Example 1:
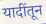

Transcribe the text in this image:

यादींतून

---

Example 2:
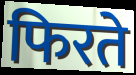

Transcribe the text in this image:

फिरते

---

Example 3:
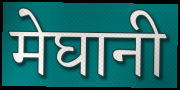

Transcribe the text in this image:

मेघानी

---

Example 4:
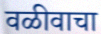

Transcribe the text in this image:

वळीवाचा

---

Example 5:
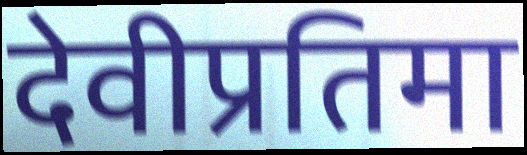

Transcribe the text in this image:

देवीप्रतिमा